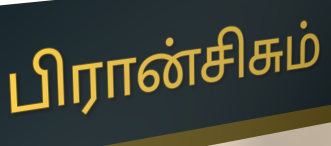
பிரான்சிசும்